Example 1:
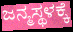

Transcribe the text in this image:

ಜನ್ಮಸ್ಥಳಕ್ಕೆ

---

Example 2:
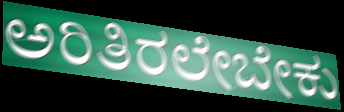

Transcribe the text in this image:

ಅರಿತಿರಲೇಬೇಕು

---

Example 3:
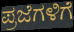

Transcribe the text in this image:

ಪ್ರಜೆಗಳಿಗೆ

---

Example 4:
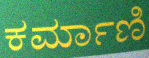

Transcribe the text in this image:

ಕರ್ಮಾಣಿ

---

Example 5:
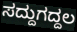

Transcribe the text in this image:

ಸದ್ದುಗದ್ದಲ